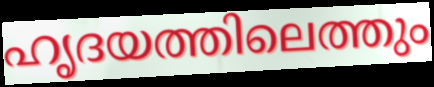
ഹൃദയത്തിലെത്തും